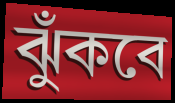
ঝুঁকবে